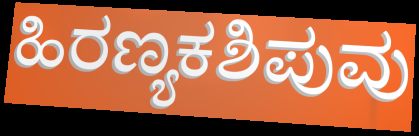
ಹಿರಣ್ಯಕಶಿಪುವು